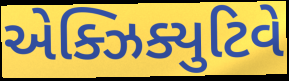
એક્ઝિક્યુટિવે